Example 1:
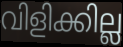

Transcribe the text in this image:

വിളിക്കില്ല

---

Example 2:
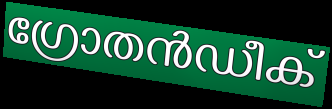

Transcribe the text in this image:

ഗ്രോതൻഡീക്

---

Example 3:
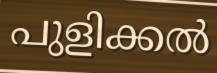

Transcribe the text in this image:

പുളിക്കൽ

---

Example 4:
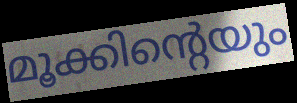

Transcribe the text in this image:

മൂക്കിന്റെയും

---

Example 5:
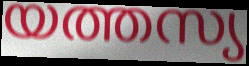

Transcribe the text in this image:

യത്തസ്യ